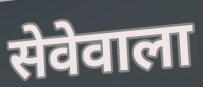
सेवेवाला